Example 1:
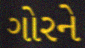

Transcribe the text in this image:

ગોરને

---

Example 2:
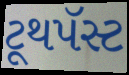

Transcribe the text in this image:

ટૂથપૅસ્ટ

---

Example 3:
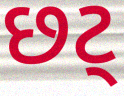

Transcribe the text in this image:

છટ્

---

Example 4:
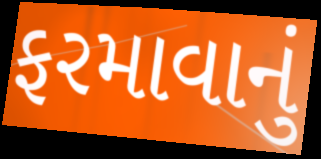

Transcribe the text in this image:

ફરમાવાનું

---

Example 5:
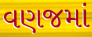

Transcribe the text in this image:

વણજમાં